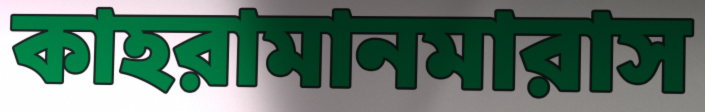
কাহরামানমারাস